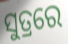
ସୁତ୍ରରେ